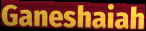
Ganeshaiah